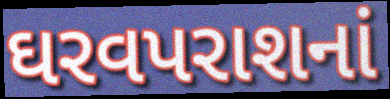
ઘરવપરાશનાં